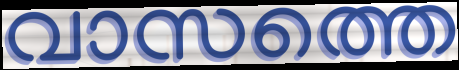
വാസത്തെ